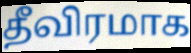
தீவிரமாக